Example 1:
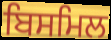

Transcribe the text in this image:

ਬਿਸਮਿਲ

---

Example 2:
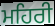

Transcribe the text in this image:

ਮਹਿਰੀ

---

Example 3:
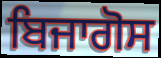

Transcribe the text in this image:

ਬਿਜਾਗੋਸ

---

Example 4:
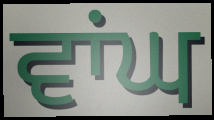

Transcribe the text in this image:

ਵਾਂਘ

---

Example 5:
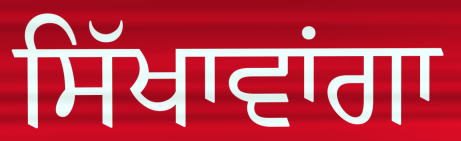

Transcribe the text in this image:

ਸਿੱਖਾਵਾਂਗਾ